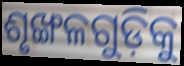
ଶୃଙ୍ଖଳଗୁଡ଼ିକୁ